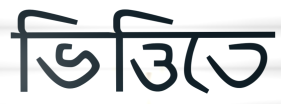
ভিত্তিতে